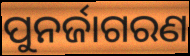
ପୁନର୍ଜାଗରଣ